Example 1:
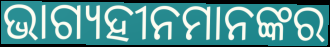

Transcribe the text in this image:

ଭାଗ୍ୟହୀନମାନଙ୍କର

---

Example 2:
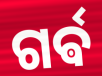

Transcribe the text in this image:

ଗର୍ଵ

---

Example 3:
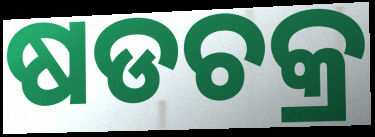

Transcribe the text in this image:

ଷଡଚକ୍ର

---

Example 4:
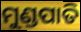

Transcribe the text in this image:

ମୁଣ୍ଡପାତି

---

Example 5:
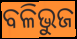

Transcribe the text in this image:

ବଳିଭୁଜ